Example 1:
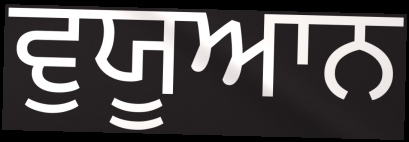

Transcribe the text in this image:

ਵੁਯੂਆਨ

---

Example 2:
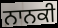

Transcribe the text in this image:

ਨਾਨਕੀ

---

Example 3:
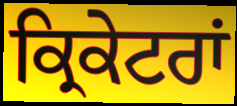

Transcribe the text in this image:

ਕ੍ਰਿਕੇਟਰਾਂ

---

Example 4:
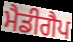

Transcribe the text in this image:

ਮੈਡੀਗੈਪ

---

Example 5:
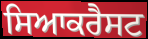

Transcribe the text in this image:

ਸਿਆਕਰੈਸਟ